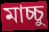
মাচ্চু